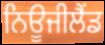
ਨਿਊਜੀਲੈਂਡ